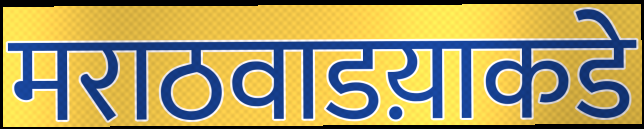
मराठवाडय़ाकडे